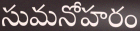
సుమనోహరం